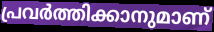
പ്രവർത്തിക്കാനുമാണ്